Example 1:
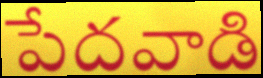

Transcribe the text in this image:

పేదవాడి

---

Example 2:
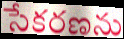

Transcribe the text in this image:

సేకరణను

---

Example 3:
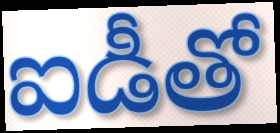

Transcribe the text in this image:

ఐడీతో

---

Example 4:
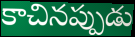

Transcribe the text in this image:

కాచినప్పుడు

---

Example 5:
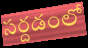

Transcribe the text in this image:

సర్దడంలో